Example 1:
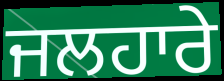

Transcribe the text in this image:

ਜਲਹਾਰੇ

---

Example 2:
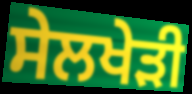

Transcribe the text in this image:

ਸੇਲਖੇੜੀ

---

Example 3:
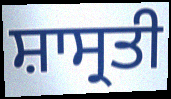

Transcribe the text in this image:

ਸ਼ਾਸ੍ਰਤੀ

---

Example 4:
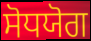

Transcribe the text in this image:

ਸੋਧਯੋਗ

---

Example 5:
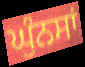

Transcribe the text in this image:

ਘੁੰਨਸਾਂ